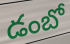
డంబో